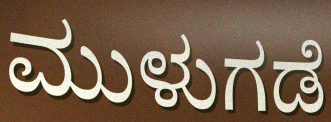
ಮುಳುಗಡೆ